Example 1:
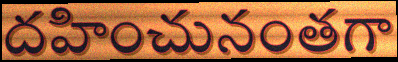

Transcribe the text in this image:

దహించునంతగా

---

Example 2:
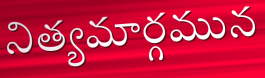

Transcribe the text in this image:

నిత్యమార్గమున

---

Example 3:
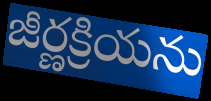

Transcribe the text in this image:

జీర్ణక్రియను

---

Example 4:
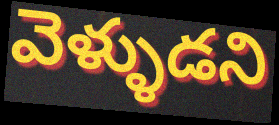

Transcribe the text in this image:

వెళ్ళుడని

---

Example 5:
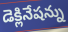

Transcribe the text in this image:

డెక్లినేషన్ను